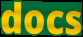
docs